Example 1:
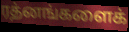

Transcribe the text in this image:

ரத்னங்களைக்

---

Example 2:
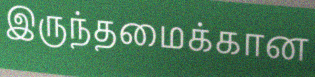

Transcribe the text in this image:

இருந்தமைக்கான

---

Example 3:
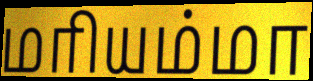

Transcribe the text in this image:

மரியம்மா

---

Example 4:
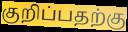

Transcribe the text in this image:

குறிப்பதற்கு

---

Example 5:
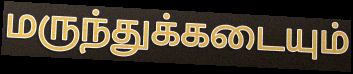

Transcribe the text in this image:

மருந்துக்கடையும்